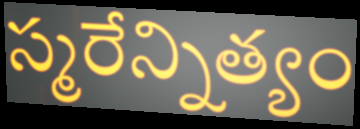
స్మరేన్నిత్యం